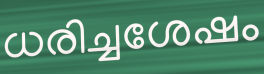
ധരിച്ചശേഷം